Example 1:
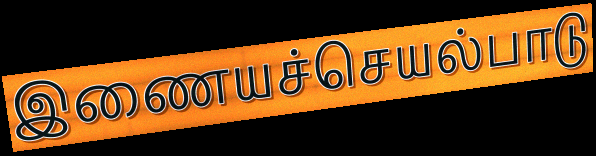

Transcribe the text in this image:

இணையச்செயல்பாடு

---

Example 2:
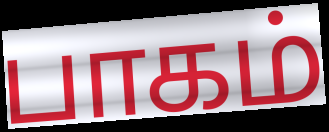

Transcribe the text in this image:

பாகம்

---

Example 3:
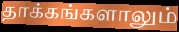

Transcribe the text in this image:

தாக்கங்களாலும்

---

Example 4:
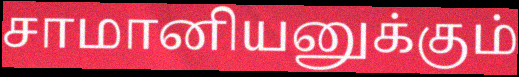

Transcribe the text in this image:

சாமானியனுக்கும்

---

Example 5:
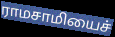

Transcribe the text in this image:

ராமசாமியைச்